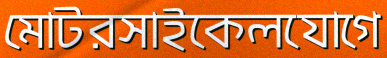
মোটরসাইকেলযোগে